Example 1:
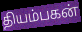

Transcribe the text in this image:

தியம்பகன்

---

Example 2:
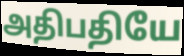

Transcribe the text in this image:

அதிபதியே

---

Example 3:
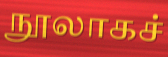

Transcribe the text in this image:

நூலாகச்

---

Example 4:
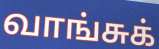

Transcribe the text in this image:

வாங்சுக்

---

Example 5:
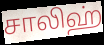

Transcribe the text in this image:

சாலிஹ்